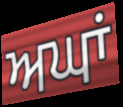
ਅਘਾਂ